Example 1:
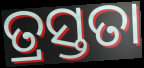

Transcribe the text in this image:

ତ୍ରସ୍ତତା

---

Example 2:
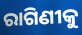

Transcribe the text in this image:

ରାଗିଣୀକୁ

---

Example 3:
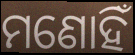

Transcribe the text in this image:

ମଣୋହିଁ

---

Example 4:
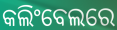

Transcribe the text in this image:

କଲିଂବେଲରେ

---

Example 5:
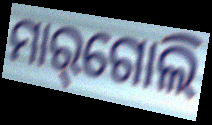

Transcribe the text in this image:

ମାର୍‌ଗୋଲି